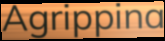
Agrippina